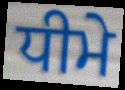
ਧੀਮੇ